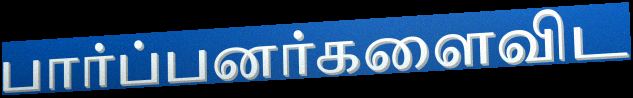
பார்ப்பனர்களைவிட